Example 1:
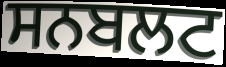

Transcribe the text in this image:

ਸਨਬਲਟ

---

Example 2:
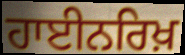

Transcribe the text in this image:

ਹਾਈਨਰਿਖ਼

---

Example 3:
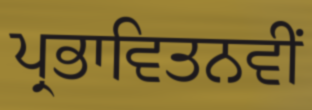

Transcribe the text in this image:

ਪ੍ਰਭਾਵਿਤਨਵੀਂ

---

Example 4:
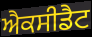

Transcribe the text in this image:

ਐਕਸੀਡੈਟ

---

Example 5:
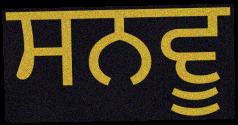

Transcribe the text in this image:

ਸਨਵੂ